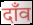
दाँव